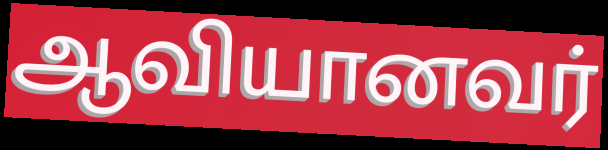
ஆவியானவர்